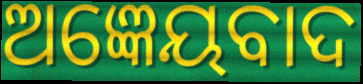
ଅଜ୍ଞେୟବାଦ